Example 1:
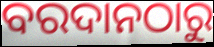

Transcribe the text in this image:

ବରଦାନଠାରୁ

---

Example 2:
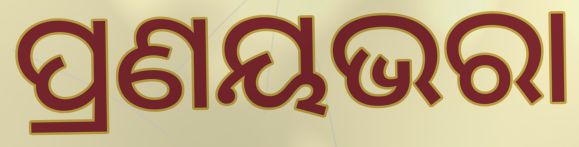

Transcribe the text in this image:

ପ୍ରଣୟଭରା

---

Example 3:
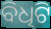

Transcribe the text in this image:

ବିଧିଟି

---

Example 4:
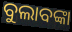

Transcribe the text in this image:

ବୁଲାବଙ୍କା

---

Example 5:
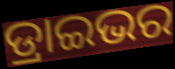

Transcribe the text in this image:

ଡ୍ରାଇଭର